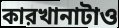
কারখানাটাও